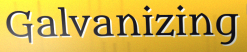
Galvanizing